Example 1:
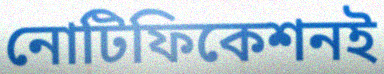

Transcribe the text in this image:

নোটিফিকেশনই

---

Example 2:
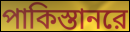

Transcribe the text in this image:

পাকিস্তানরে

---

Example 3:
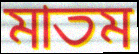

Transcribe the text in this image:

মাতম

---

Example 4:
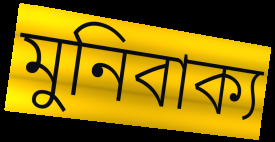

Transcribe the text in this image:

মুনিবাক্য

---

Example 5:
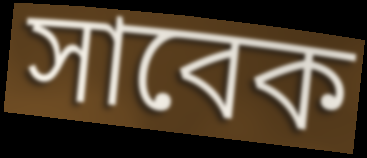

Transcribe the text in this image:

সাবেক